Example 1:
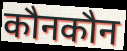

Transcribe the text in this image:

कौनकौन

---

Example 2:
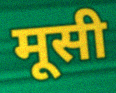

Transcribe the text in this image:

मूसी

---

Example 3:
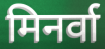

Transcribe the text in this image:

मिनर्वा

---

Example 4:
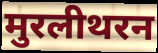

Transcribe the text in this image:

मुरलीथरन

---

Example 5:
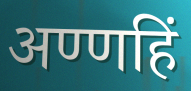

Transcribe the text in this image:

अण्णहिं